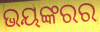
ଭୟଙ୍କରର